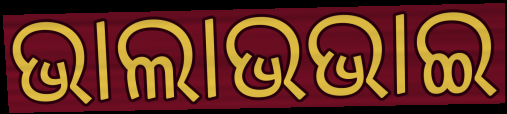
ଭାଲାଭଭାଇ